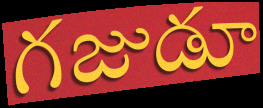
గజుడూ